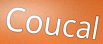
Coucal